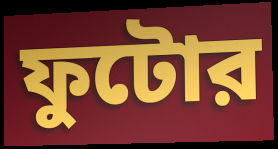
ফুটোর